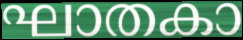
ഘാതകാ